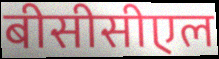
बीसीसीएल